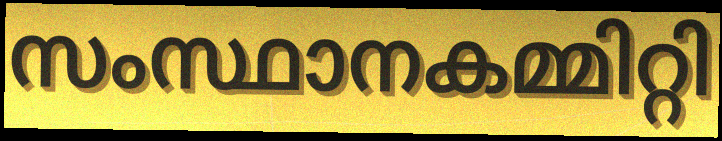
സംസ്ഥാനകമ്മിറ്റി